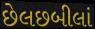
છેલછબીલાં